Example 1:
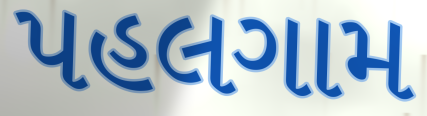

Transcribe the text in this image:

પહલગામ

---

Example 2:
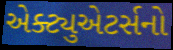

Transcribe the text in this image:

એક્ટ્યુએટર્સનો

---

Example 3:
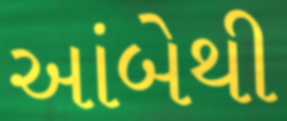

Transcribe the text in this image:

આંબેથી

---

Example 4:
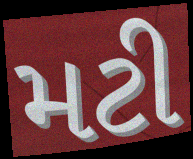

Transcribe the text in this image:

મટી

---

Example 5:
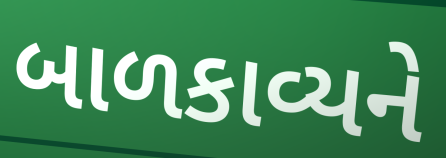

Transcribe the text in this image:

બાળકાવ્યને